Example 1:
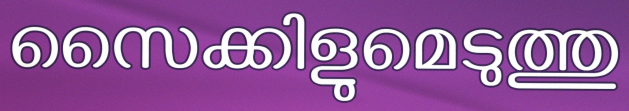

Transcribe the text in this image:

സൈക്കിളുമെടുത്തു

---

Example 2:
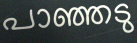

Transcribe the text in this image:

പാഞ്ഞടു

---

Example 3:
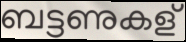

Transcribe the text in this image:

ബട്ടണുകള്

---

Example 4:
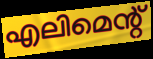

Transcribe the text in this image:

എലിമെന്റ്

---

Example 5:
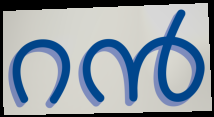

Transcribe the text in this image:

റൻ